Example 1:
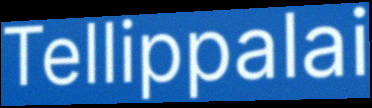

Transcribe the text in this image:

Tellippalai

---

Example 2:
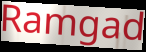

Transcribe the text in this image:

Ramgad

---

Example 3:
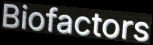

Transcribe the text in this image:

Biofactors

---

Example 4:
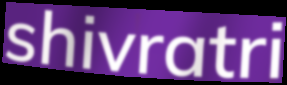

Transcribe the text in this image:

shivratri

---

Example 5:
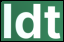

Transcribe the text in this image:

ldt